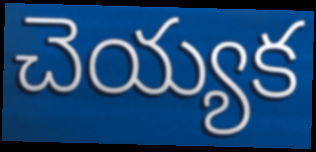
చెయ్యక